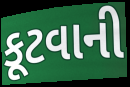
કૂટવાની